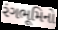
રંગભૂમિનો